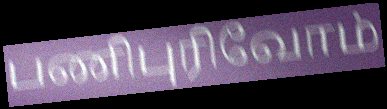
பணிபுரிவோம்